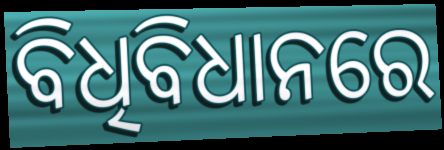
ବିଧିବିଧାନରେ